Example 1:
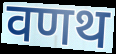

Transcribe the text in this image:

वणथ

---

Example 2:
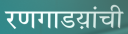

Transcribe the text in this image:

रणगाडय़ांची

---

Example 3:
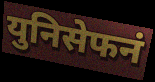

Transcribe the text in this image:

युनिसेफनं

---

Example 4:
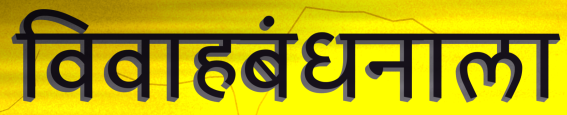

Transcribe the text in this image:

विवाहबंधनाला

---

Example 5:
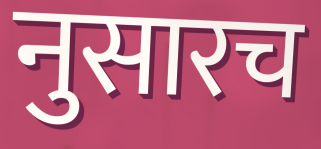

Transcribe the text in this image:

नुसारच